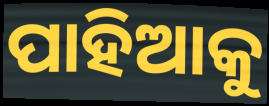
ପାହିଆକୁ